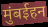
मुंबईहन